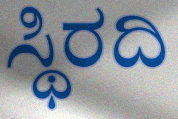
ಸ್ಥಿರದಿ